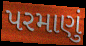
પરમાણું